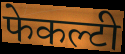
फेकल्टी